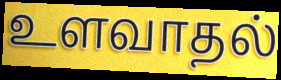
உளவாதல்